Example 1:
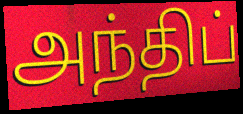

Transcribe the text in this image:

அந்திப்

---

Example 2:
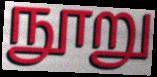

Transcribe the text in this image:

நூறு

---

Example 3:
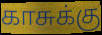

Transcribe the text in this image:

காசுக்கு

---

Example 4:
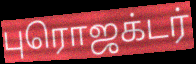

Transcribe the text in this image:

புரொஜக்டர்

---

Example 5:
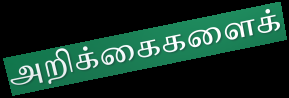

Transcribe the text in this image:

அறிக்கைகளைக்